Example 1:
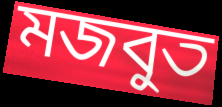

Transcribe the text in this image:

মজবুত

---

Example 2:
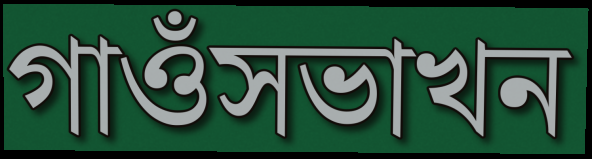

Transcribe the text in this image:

গাওঁসভাখন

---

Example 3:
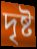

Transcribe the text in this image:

দৃষ্ট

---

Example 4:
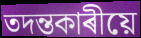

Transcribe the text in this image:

তদন্তকাৰীয়ে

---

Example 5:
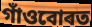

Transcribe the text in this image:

গাঁওবোৰত